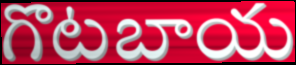
గొటబాయ